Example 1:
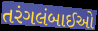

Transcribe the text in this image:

તરંગલંબાઈઓ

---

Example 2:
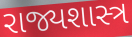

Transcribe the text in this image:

રાજ્યશાસ્ત્ર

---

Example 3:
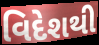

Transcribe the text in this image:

વિદેશથી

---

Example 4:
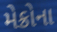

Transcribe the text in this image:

મેક્રોના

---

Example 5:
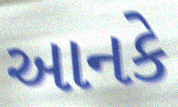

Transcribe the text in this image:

આનકે